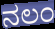
ನಲಂ